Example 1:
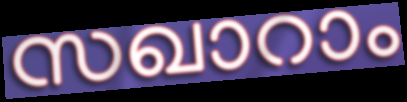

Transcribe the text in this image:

സഖാറാം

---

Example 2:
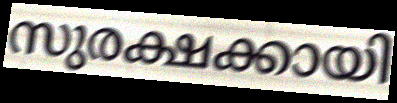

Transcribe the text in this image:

സുരക്ഷക്കായി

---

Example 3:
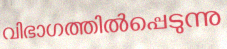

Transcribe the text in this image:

വിഭാഗത്തിൽപ്പെടുന്നു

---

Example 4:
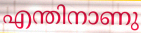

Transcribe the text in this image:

എന്തിനാണു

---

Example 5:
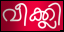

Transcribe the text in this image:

വീക്ക്ലി